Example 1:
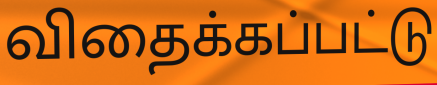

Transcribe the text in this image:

விதைக்கப்பட்டு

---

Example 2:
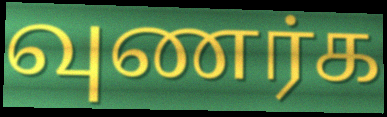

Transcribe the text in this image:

வுணர்க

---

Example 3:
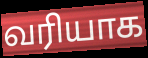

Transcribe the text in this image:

வரியாக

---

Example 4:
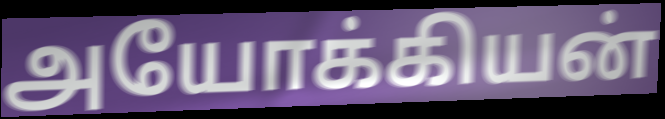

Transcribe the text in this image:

அயோக்கியன்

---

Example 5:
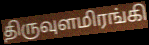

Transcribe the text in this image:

திருவுளமிரங்கி